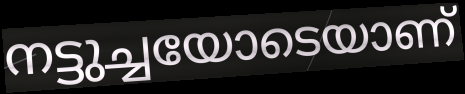
നട്ടുച്ചയോടെയാണ്